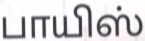
பாயிஸ்